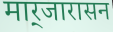
मार्जारासन